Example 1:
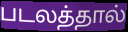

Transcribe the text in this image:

படலத்தால்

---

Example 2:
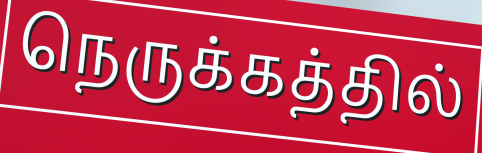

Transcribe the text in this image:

நெருக்கத்தில்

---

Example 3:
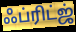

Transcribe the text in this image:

ஃப்ரிட்ஜ்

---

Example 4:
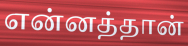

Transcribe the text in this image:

என்னத்தான்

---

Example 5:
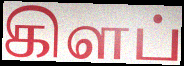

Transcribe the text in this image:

கிளப்